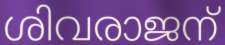
ശിവരാജന്